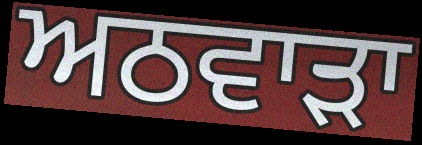
ਅਠਵਾੜਾ